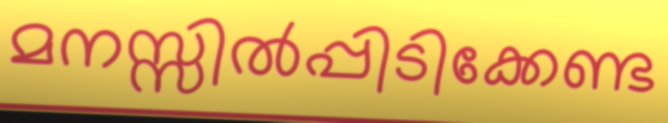
മനസ്സിൽപ്പിടിക്കേണ്ട